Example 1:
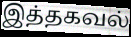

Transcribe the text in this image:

இத்தகவல்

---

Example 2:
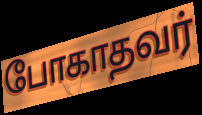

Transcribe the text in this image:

போகாதவர்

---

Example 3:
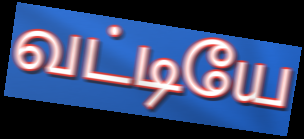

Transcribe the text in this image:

வட்டியே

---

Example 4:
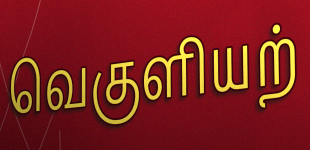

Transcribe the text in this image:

வெகுளியற்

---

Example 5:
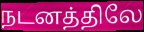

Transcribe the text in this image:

நடனத்திலே